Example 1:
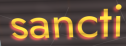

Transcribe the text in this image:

sancti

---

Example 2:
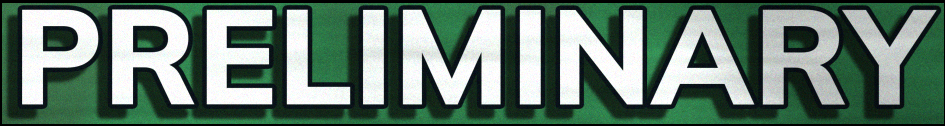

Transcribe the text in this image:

PRELIMINARY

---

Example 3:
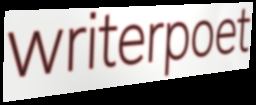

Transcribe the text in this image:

writerpoet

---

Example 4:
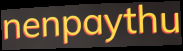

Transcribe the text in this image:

nenpaythu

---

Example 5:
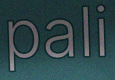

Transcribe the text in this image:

pali